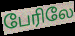
பேரிலே